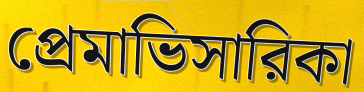
প্রেমাভিসারিকা